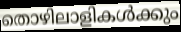
തൊഴിലാളികൾക്കും